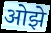
ओझे